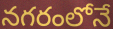
నగరంలోనే